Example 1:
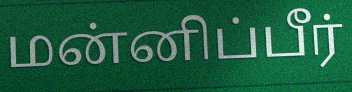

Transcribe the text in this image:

மன்னிப்பீர்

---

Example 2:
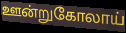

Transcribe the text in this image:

ஊன்றுகோலாய்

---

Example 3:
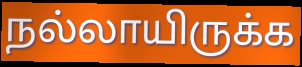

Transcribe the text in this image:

நல்லாயிருக்க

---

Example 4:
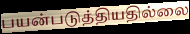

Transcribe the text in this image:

பயன்படுத்தியதில்லை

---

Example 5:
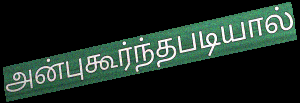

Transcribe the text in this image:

அன்புகூர்ந்தபடியால்